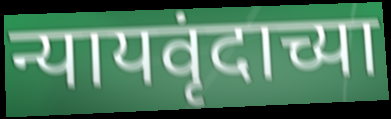
न्यायवृंदाच्या